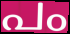
പം